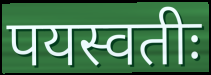
पयस्वतीः